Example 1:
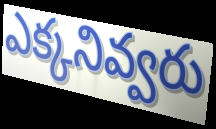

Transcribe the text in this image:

ఎక్కనివ్వరు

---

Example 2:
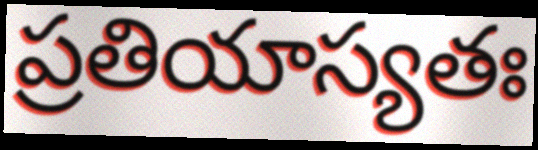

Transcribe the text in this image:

ప్రతియాస్యతః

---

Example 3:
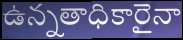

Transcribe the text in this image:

ఉన్నతాధికారైనా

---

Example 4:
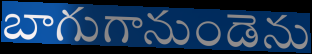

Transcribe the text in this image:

బాగుగానుండెను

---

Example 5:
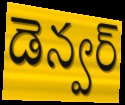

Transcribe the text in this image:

డెన్వర్